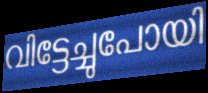
വിട്ടേച്ചുപോയി